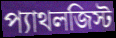
প্যাথলজিস্ট